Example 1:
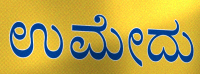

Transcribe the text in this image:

ಉಮೇದು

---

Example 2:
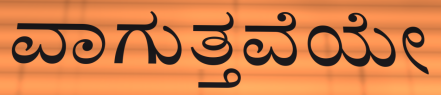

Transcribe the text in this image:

ವಾಗುತ್ತವೆಯೇ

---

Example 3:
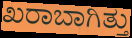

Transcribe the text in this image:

ಖರಾಬಾಗಿತ್ತು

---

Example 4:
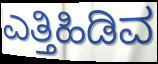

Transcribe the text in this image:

ಎತ್ತಿಹಿಡಿವ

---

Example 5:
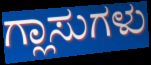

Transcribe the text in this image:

ಗ್ಲಾಸುಗಳು